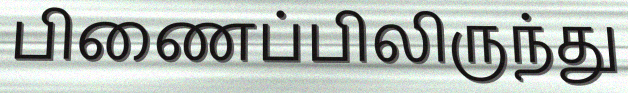
பிணைப்பிலிருந்து